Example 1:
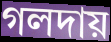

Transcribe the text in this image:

গলদায়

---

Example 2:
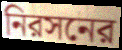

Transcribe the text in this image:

নিরসনের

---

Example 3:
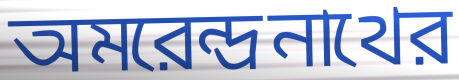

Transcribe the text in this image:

অমরেন্দ্রনাথের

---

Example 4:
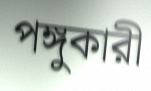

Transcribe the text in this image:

পঙ্গুকারী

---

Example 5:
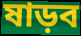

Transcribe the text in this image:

ষাড়ব